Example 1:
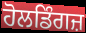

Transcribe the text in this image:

ਹੋਲਡਿੰਗਜ਼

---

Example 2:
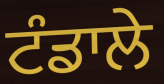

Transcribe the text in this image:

ਟੰਡਾਲੇ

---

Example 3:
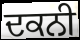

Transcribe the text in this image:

ਦਕਨੀ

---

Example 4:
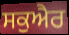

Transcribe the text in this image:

ਸਕੁਐਰ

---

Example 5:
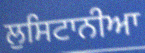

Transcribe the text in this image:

ਲੁਸਿਟਾਨੀਆ